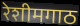
रेशीमगाठ